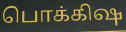
பொக்கிஷ